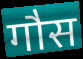
गौस